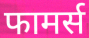
फामर्स